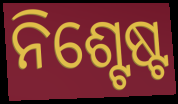
ନିଶ୍ଟେଷ୍ଟ